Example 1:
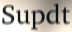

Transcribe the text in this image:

Supdt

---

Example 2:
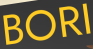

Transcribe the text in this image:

BORI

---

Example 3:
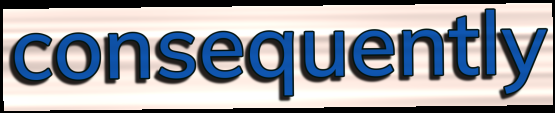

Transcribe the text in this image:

consequently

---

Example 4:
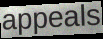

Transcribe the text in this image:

appeals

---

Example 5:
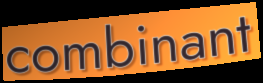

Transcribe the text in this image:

combinant